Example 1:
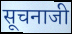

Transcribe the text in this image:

सूचनाजी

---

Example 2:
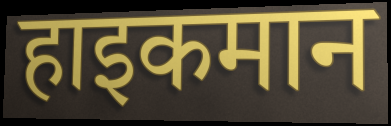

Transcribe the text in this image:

हाइकमान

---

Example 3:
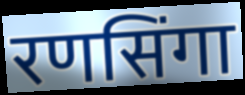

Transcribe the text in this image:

रणसिंगा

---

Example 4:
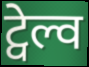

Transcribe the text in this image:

ट्वेल्व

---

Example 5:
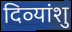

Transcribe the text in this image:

दिव्‍यांशु